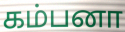
கம்பனா